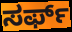
ಸರ್ಫ್